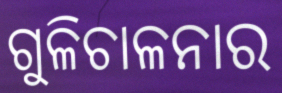
ଗୁଳିଚାଳନାର